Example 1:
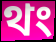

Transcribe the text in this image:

থং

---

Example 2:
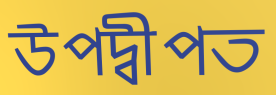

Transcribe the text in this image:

উপদ্বীপত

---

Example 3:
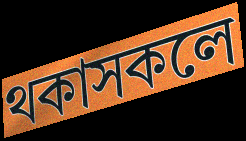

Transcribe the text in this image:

থকাসকলে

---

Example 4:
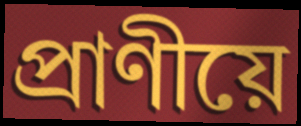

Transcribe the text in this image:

প্ৰাণীয়ে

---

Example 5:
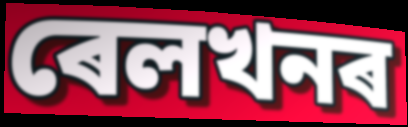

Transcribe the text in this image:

ৰেলখনৰ